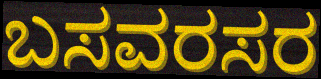
ಬಸವರಸರ